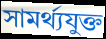
সামর্থ্যযুক্ত